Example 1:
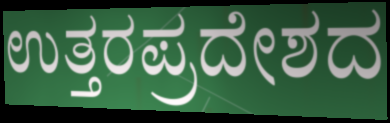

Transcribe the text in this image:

ಉತ್ತರಪ್ರದೇಶದ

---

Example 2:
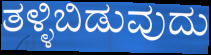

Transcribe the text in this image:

ತಳ್ಳಿಬಿಡುವುದು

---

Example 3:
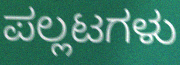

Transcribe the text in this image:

ಪಲ್ಲಟಗಳು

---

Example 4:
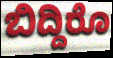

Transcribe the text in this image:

ಬಿದ್ದಿರೊ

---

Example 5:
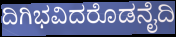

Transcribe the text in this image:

ದಿಗಿಭವಿದರೊಡನೈದಿ